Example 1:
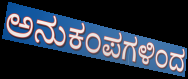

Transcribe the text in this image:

ಅನುಕಂಪಗಳಿಂದ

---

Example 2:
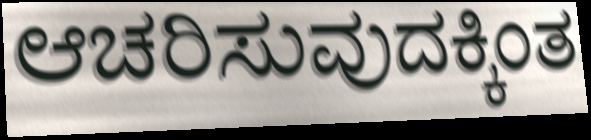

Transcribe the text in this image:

ಆಚರಿಸುವುದಕ್ಕಿಂತ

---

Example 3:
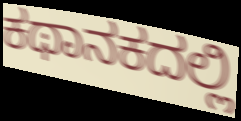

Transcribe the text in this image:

ಕಥಾನಕದಲ್ಲಿ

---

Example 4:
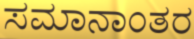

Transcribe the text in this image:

ಸಮಾನಾಂತರ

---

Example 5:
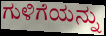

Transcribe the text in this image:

ಗುಳಿಗೆಯನ್ನು